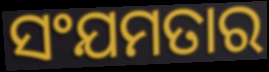
ସଂଯମତାର